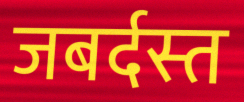
जबर्दस्त